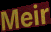
Meir